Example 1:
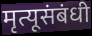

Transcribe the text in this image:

मृत्यूसंबंधी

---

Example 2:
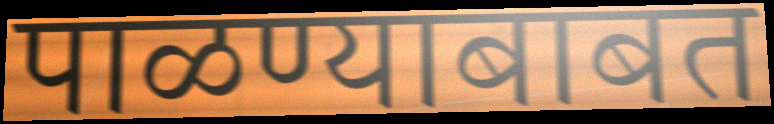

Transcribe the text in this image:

पाळण्याबाबत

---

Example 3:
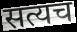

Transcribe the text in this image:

सत्यच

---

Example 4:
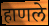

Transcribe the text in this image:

हाणले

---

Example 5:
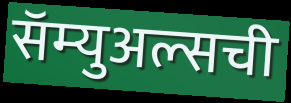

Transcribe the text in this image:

सॅम्युअल्सची